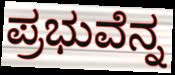
ಪ್ರಭುವೆನ್ನ